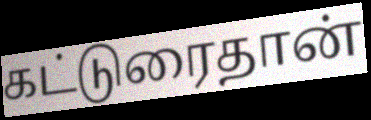
கட்டுரைதான்